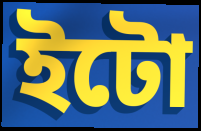
ইটো